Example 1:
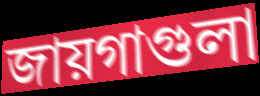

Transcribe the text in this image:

জায়গাগুলা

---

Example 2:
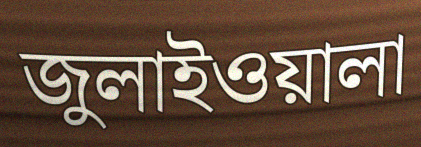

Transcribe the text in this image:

জুলাইওয়ালা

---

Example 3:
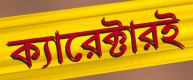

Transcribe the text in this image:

ক্যারেক্টারই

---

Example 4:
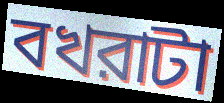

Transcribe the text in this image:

বখরাটা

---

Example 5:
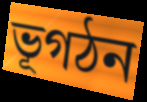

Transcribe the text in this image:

ভূগঠন